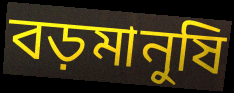
বড়মানুষি